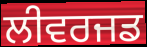
ਲੀਵਰਜਡ